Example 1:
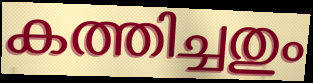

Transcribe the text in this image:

കത്തിച്ചതും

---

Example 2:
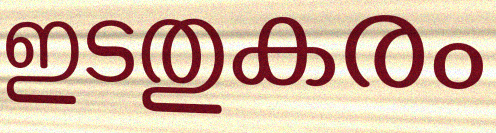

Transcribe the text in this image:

ഇടതുകരം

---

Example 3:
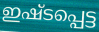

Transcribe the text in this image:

ഇഷ്ടപ്പെട്ട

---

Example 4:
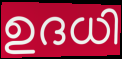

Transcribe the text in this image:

ഉദധി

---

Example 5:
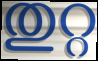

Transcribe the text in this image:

തുറ്റ